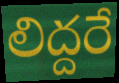
లిద్దరే